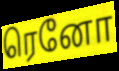
ரெனோ